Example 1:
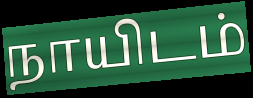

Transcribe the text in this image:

நாயிடம்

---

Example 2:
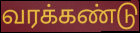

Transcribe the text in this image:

வரக்கண்டு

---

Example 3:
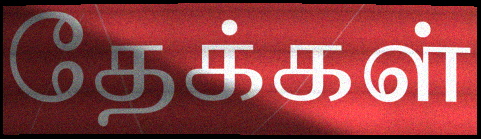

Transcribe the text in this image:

தேக்கள்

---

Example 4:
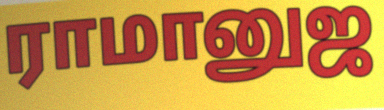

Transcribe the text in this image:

ராமானுஜ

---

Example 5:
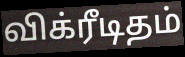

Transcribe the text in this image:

விக்ரீடிதம்